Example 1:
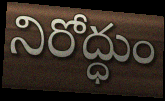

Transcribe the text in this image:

నిరోద్ధుం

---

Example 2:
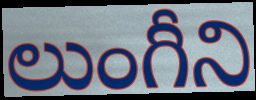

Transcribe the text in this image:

లుంగీని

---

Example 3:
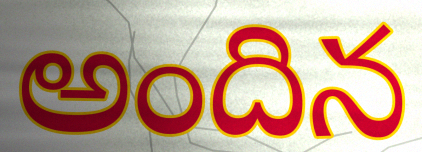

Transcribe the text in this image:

అందిన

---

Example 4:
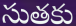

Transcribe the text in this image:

సుతకు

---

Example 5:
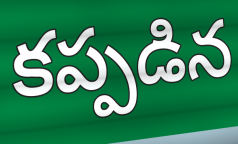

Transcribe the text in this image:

కప్పడిన